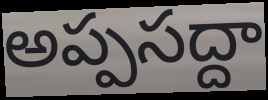
అప్పసద్దా